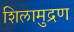
शिलामुद्रण